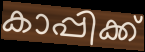
കാപ്പിക്ക്